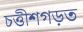
চত্তীশগড়ত